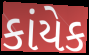
કાંયેક